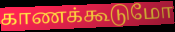
காணக்கூடுமோ